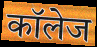
कॉलेज